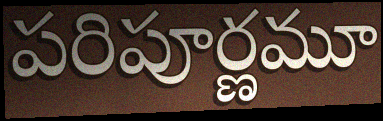
పరిపూర్ణమూ